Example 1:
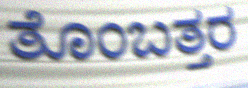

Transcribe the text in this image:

ತೊಂಬತ್ತರ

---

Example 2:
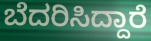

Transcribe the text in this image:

ಬೆದರಿಸಿದ್ದಾರೆ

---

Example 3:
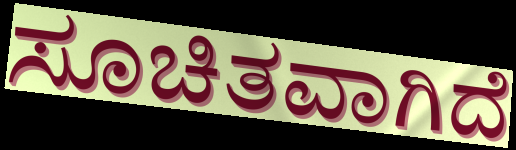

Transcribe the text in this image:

ಸೂಚಿತವಾಗಿದೆ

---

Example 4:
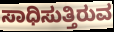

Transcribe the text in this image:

ಸಾಧಿಸುತ್ತಿರುವ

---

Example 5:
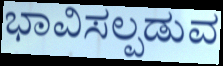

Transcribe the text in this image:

ಭಾವಿಸಲ್ಪಡುವ